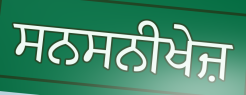
ਸਨਸਨੀਖੇਜ਼